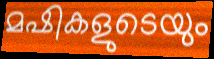
മഷികളുടെയും